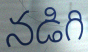
నడిగి